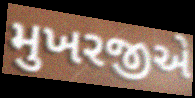
મુખરજીએ